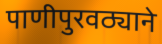
पाणीपुरवठ्याने